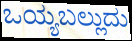
ಒಯ್ಯಬಲ್ಲುದು